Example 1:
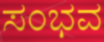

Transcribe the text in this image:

ಸಂಭವ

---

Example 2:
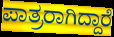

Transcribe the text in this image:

ಪಾತ್ರರಾಗಿದ್ದಾರೆ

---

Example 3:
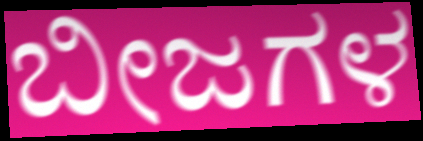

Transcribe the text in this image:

ಬೀಜಗಳ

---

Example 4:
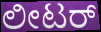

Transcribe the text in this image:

ಲೀಟರ್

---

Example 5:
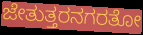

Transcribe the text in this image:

ಜೇತುತ್ತರನಗರತೋ